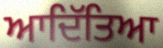
ਆਦਿੱਤਿਆ